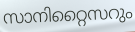
സാനിറ്റൈസറും